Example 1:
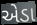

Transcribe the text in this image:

એડા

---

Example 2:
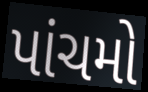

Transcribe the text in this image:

પાંચમો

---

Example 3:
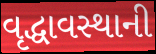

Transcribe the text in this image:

વૃદ્ધાવસ્થાની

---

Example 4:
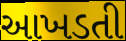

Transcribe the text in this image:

આખડતી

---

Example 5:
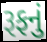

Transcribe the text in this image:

રૂફનું